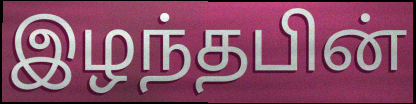
இழந்தபின்